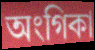
অংগিকা